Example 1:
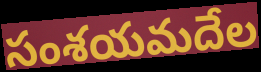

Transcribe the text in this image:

సంశయమదేల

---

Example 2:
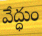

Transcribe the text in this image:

వేద్ధుం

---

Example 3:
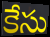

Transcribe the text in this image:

కేసు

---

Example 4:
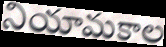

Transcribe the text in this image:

నియామకాల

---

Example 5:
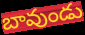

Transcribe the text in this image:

బావుండు